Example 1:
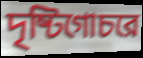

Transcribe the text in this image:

দৃষ্টিগোচরে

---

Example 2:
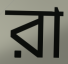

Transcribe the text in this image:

রা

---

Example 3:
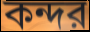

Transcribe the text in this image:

কন্দর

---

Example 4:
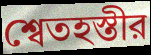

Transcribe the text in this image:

শ্বেতহস্তীর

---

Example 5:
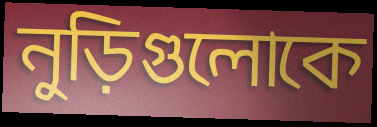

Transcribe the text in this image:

নুড়িগুলোকে